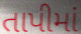
તાપીમાં